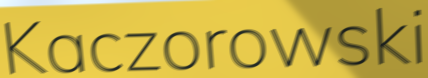
Kaczorowski